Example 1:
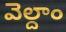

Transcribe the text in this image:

వెల్దాం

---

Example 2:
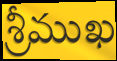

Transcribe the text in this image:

శ్రీముఖ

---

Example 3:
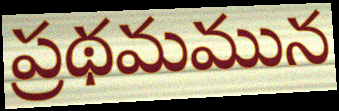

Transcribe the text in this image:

ప్రథమమున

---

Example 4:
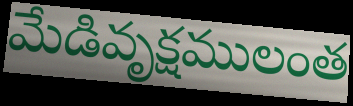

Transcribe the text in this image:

మేడివృక్షములంత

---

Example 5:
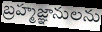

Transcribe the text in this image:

బ్రహ్మజ్ఞానులను